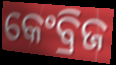
କେଂବ୍ରିଜ